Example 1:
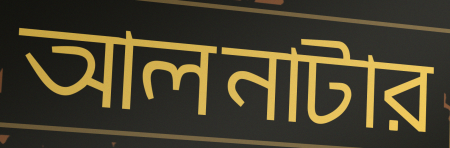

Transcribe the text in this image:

আলনাটার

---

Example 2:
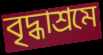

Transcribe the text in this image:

বৃদ্ধাশ্রমে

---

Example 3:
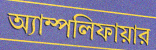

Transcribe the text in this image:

অ্যাম্পলিফায়ার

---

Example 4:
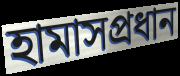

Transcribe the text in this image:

হামাসপ্রধান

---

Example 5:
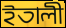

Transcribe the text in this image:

ইতালী